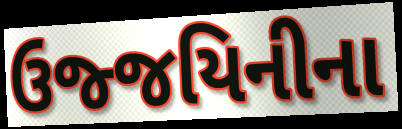
ઉજ્જયિનીના